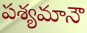
పశ్యమానౌ